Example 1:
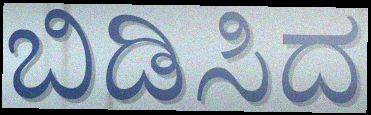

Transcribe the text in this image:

ಬಿಡಿಸಿದ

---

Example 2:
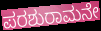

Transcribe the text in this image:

ಪರಶುರಾಮನೇ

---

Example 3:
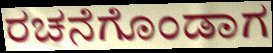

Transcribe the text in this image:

ರಚನೆಗೊಂಡಾಗ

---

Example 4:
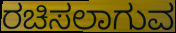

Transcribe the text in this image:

ರಚಿಸಲಾಗುವ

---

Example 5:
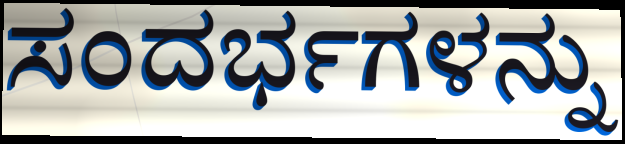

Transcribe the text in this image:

ಸಂದರ್ಭಗಳನ್ನು